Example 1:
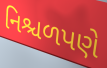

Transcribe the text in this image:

નિશ્ચળપણે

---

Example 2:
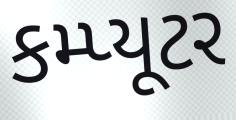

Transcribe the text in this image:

કમ્પ્યૂટર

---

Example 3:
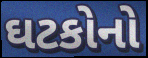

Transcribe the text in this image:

ઘટકોનો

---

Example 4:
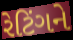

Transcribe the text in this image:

રેટિંગને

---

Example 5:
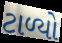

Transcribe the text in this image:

ટાળ્યો